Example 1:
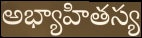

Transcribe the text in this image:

అభ్యాహితస్య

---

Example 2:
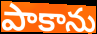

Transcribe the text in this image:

పాకాను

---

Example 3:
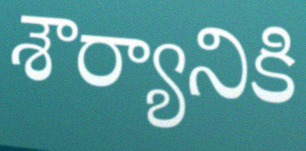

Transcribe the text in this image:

శౌర్యానికి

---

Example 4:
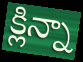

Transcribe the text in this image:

క్లిన్నా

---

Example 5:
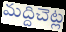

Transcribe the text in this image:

మద్దిచెట్ల